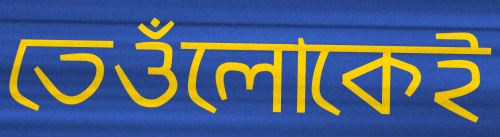
তেওঁলোকেই